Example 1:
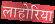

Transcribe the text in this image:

लाहोरिया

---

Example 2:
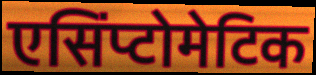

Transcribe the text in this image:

एसिंप्टोमेटिक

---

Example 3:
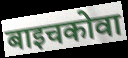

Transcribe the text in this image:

बाइचकोवा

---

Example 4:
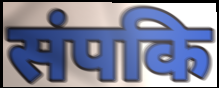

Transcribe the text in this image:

संपकि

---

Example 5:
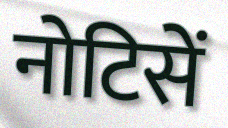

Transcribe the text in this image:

नोटिसें